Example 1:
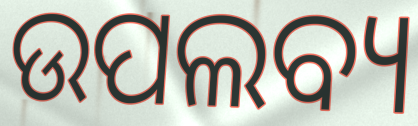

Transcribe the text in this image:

ଉପଲବ୍ୟ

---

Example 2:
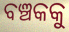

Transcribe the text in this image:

ବଞ୍ଚକକୁ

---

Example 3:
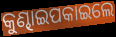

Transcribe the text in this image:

କୁଣ୍ଢାଇପକାଇଲେ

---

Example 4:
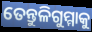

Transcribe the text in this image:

ତେନ୍ତୁଳିଗୁମ୍ମାକୁ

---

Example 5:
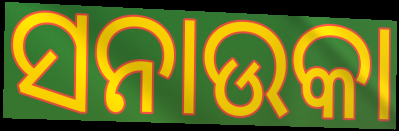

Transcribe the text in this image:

ସନାଉକା